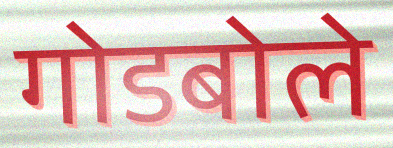
गोडबोले